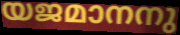
യജമാനനു